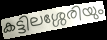
കട്ടിലശ്ശേരിയും